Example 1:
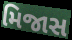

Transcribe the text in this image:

મિજાસ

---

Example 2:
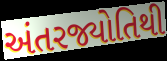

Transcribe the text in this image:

અંતરજ્યોતિથી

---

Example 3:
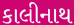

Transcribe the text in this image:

કાલીનાથ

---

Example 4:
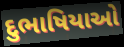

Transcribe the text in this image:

દુભાષિયાઓ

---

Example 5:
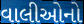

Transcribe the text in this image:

વાલીઓનો